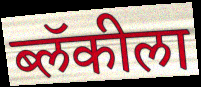
ब्लॅकीला